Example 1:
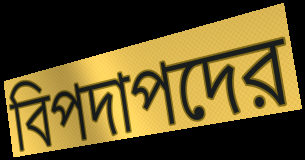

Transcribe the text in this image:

বিপদাপদের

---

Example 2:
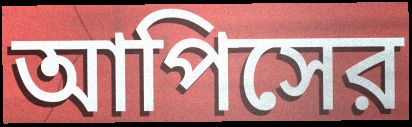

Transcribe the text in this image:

আপিসের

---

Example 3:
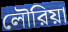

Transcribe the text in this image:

লৌরিয়া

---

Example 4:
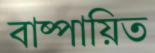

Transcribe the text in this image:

বাষ্পায়িত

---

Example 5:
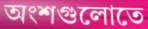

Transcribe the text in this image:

অংশগুলোতে